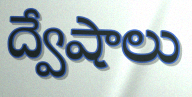
ద్వేషాలు